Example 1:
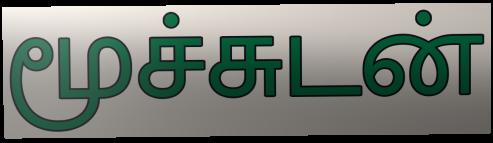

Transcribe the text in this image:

மூச்சுடன்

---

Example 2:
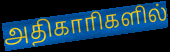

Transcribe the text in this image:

அதிகாரிகளில்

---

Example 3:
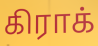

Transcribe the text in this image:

கிராக்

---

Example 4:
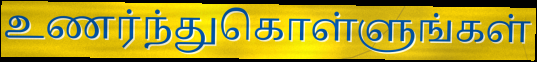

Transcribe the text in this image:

உணர்ந்துகொள்ளுங்கள்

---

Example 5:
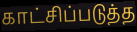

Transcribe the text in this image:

காட்சிப்படுத்த